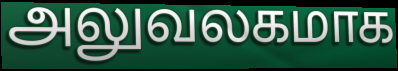
அலுவலகமாக